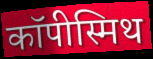
कॉपीस्मिथ